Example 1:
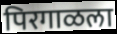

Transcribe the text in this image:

पिरगाळला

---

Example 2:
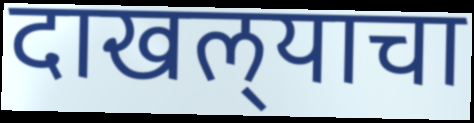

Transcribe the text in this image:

दाखल्याचा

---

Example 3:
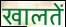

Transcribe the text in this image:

खालतें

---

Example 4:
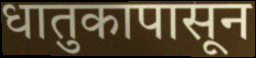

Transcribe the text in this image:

धातुकापासून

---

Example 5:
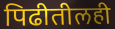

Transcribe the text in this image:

पिढीतीलही